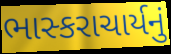
ભાસ્કરાચાર્યનું